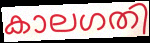
കാലഗതി